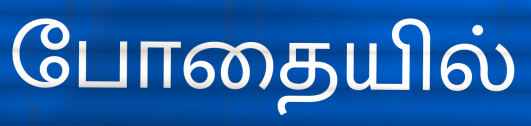
போதையில்